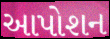
આપોશન